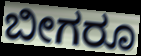
ಬೀಗರೂ